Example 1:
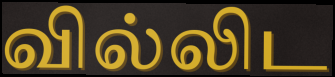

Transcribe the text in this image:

வில்லிட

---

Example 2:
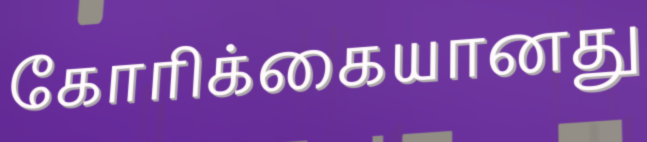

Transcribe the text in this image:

கோரிக்கையானது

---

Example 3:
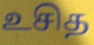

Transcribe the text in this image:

உசித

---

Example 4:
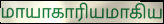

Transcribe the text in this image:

மாயாகாரியமாகிய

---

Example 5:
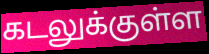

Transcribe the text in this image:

கடலுக்குள்ள